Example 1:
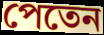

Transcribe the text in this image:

পেতেন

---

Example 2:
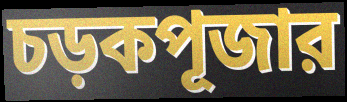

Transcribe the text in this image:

চড়কপূজার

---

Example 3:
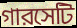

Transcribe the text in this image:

গারসেটি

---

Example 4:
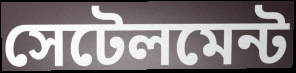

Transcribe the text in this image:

সেটেলমেন্ট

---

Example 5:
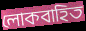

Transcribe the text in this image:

লোকবাহিত